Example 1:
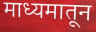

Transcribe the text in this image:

माध्यमातून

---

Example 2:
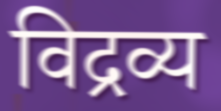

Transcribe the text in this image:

विद्रव्य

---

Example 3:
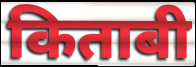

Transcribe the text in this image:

किताबी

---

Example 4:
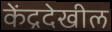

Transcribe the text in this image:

केंद्रदेखील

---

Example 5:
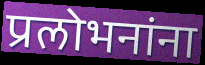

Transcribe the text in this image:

प्रलोभनांना